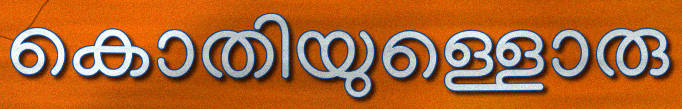
കൊതിയുള്ളൊരു